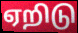
ஏறிடு